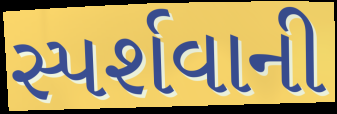
સ્પર્શવાની